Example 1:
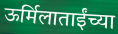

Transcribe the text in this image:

ऊर्मिलाताईंच्या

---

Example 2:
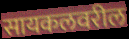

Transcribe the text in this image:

सायकलवरील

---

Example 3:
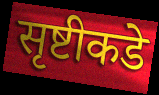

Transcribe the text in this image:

सृष्टीकडे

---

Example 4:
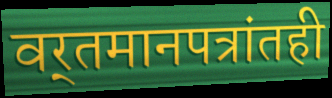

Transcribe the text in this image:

वर्तमानपत्रांतही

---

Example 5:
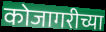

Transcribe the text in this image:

कोजागरीच्या